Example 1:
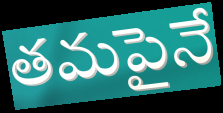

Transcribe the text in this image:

తమపైనే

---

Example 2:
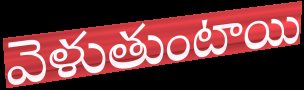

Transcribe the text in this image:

వెళుతుంటాయి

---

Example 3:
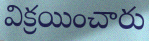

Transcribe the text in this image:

విక్రయించారు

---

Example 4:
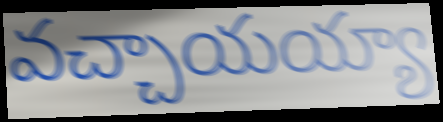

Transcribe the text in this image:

వచ్చాయయ్యా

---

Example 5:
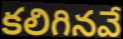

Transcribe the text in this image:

కలిగినవే